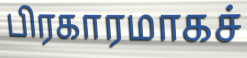
பிரகாரமாகச்